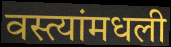
वस्त्यांमधली